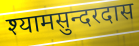
श्यामसुन्दरदास